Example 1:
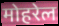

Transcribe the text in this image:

मोहरेल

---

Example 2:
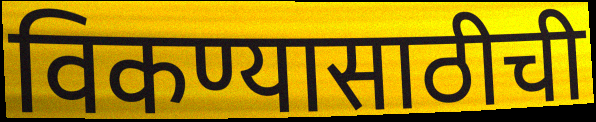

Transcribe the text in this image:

विकण्यासाठीची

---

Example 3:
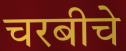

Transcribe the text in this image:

चरबीचे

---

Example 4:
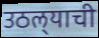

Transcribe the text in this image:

उठल्याची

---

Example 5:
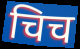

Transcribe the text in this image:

चिच